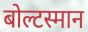
बोल्टस्मान